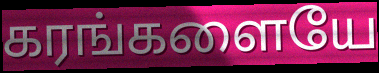
கரங்களையே